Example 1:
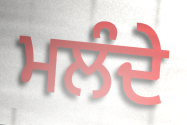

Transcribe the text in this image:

ਮਲੰਦੇ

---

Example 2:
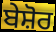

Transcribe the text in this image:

ਬੇਸ਼ੋਰ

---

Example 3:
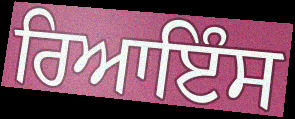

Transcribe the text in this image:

ਰਿਆਇੰਸ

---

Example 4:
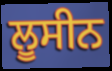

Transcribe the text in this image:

ਲੂਸੀਨ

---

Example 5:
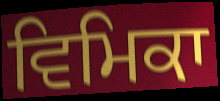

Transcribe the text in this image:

ਵਿਮਿਕਾ